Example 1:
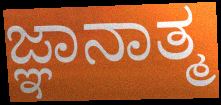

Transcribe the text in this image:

ಜ್ಞಾನಾತ್ಮ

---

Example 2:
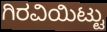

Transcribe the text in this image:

ಗಿರವಿಯಿಟ್ಟು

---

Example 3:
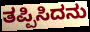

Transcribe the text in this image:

ತಪ್ಪಿಸಿದನು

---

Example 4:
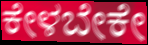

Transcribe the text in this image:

ಕೇಳಬೇಕೇ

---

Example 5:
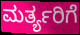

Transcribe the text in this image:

ಮರ್ತ್ಯರಿಗೆ